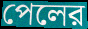
পেলের